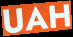
UAH